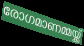
രോഗമാണമ്മയ്ക്ക്